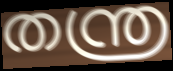
തന്ത്ര